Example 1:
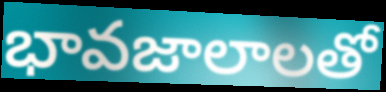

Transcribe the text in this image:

భావజాలాలతో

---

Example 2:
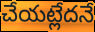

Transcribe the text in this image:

చేయట్లేదనే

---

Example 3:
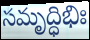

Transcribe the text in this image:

సమృద్ధిభిః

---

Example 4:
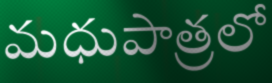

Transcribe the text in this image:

మధుపాత్రలో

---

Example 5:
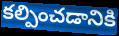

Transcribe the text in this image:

కల్పించడానికి